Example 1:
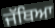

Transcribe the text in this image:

ਜੱਥਿਆ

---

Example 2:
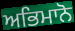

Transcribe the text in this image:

ਅਭਿਮਾਨੋ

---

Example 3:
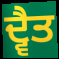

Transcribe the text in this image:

ਦ੍ਵੈਤ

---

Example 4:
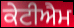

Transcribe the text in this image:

ਕੇਟੀਐਮ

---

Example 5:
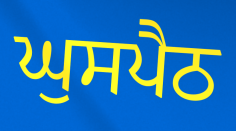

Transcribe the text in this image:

ਘੁਸਪੈਠ